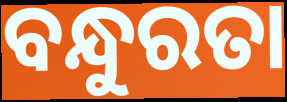
ବନ୍ଧୁରତା